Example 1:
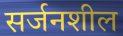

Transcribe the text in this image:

सर्जनशील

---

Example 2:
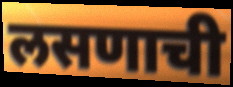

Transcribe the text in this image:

लसणाची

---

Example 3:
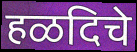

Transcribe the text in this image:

हळदिचे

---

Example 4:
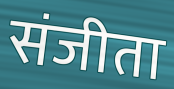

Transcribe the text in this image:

संजीता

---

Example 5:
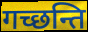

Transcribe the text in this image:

गच्छन्ति